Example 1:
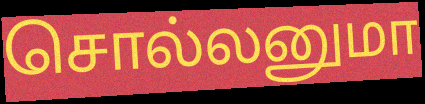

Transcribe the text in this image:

சொல்லனுமா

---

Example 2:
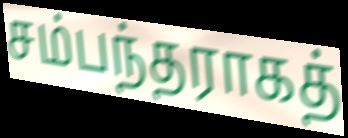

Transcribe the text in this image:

சம்பந்தராகத்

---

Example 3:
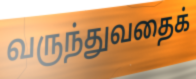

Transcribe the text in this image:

வருந்துவதைக்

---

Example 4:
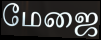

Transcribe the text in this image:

மேஜை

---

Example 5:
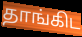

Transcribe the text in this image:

தாங்கிட